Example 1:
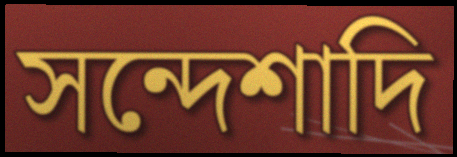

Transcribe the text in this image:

সন্দেশাদি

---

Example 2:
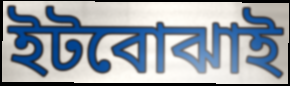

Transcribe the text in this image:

ইটবোঝাই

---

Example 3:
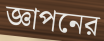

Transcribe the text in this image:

জ্ঞাপনের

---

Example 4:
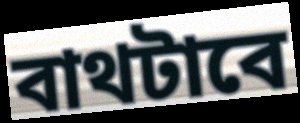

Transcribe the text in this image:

বাথটাবে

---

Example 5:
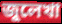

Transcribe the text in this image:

জুলেখা